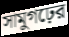
সামুগঢ়ের